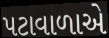
પટાવાળાએ